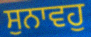
ਸੁਨਾਵਹੁ